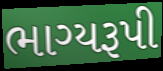
ભાગ્યરૂપી